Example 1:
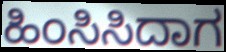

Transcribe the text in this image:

ಹಿಂಸಿಸಿದಾಗ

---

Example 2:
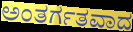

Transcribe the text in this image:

ಅಂತರ್ಗತವಾದ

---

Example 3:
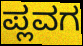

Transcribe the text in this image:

ಪ್ಲವಗ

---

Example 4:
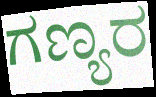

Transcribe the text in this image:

ಗಣ್ಯರ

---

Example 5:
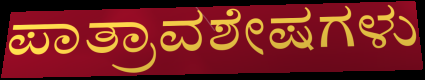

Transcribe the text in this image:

ಪಾತ್ರಾವಶೇಷಗಳು